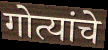
गोत्यांचे